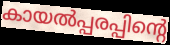
കായൽപ്പരപ്പിന്റെ